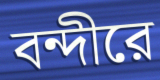
বন্দীরে